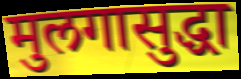
मुलगासुद्धा